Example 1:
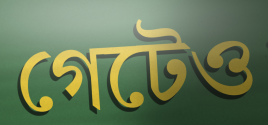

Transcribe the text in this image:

গেটেও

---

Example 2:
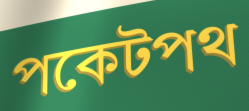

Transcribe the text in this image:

পকেটপথ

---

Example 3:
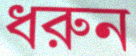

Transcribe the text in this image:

ধরুন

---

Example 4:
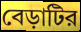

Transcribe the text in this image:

বেড়াটির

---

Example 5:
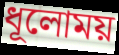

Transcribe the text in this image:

ধূলোময়